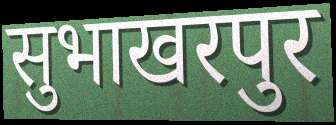
सुभाखरपुर